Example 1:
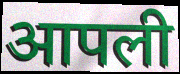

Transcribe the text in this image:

आपली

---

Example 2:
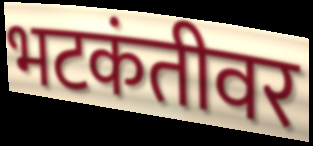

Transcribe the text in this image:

भटकंतीवर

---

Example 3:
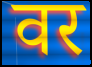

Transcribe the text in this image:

वर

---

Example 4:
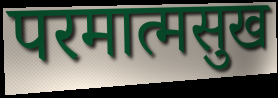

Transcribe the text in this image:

परमात्मसुख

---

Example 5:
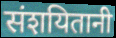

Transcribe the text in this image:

संशयितानी